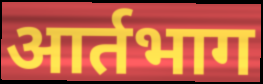
आर्तभाग